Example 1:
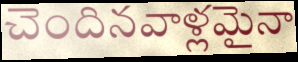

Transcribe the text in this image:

చెందినవాళ్లమైనా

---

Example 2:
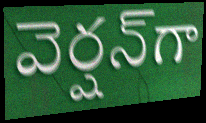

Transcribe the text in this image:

వెర్షన్‌గా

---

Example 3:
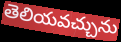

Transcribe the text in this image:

తెలియవచ్చును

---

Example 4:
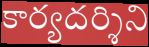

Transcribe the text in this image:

కార్యదర్శిని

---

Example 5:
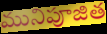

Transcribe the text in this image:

మునిపూజిత